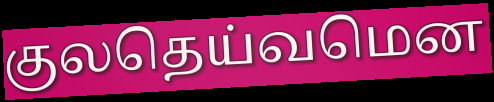
குலதெய்வமென